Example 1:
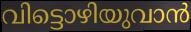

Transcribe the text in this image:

വിട്ടൊഴിയുവാൻ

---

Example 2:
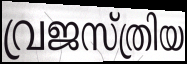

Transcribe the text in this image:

വ്രജസ്ത്രിയ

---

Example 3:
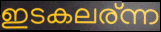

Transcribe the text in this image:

ഇടകലര്ന്ന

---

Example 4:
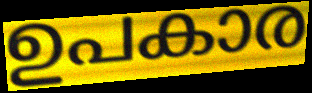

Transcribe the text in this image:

ഉപകാര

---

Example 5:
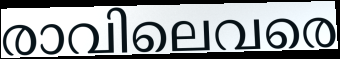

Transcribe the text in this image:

രാവിലെവരെ